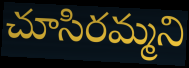
చూసిరమ్మని